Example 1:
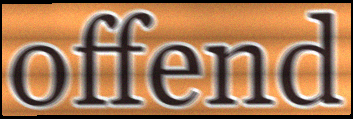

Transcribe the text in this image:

offend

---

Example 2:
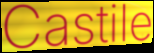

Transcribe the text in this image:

Castile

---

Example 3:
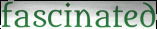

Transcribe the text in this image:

fascinated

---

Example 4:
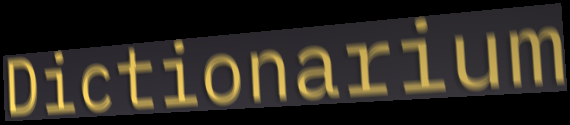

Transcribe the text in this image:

Dictionarium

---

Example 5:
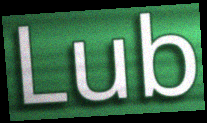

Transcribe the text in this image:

Lub